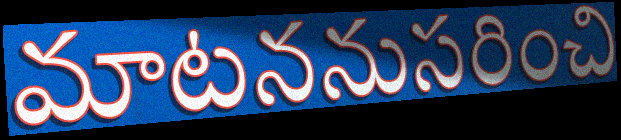
మాటననుసరించి